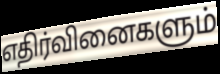
எதிர்வினைகளும்